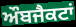
ਔਬਜੈਕਟਾਂ